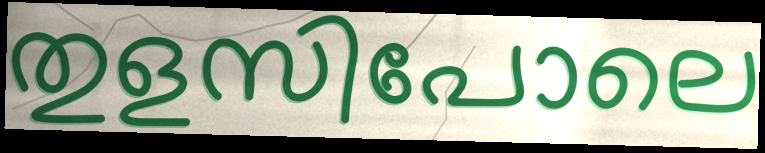
തുളസിപോലെ